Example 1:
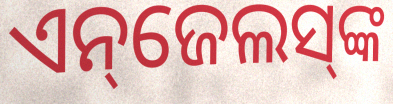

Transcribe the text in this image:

ଏନ୍‌ଜେଲସ୍‌ଙ୍କ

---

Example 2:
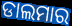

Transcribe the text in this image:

ଡାଲମାର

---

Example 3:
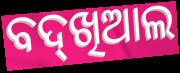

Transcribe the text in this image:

ବଦ୍‌ଖିଆଲ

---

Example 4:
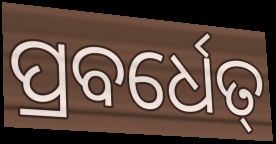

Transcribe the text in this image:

ପ୍ରବର୍ଧେତ୍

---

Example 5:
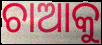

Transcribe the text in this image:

ଚାଆକୁ